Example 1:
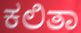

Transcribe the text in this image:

ಕಲಿತಾ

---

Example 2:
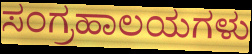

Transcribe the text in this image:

ಸಂಗ್ರಹಾಲಯಗಳು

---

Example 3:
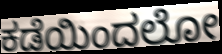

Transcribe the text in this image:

ಕಡೆಯಿಂದಲೋ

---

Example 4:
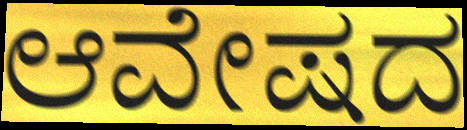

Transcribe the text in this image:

ಆವೇಷದ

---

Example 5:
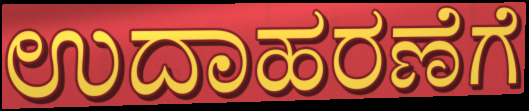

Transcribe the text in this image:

ಉದಾಹರಣೆಗೆ